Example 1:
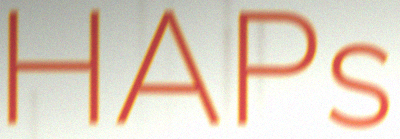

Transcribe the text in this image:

HAPs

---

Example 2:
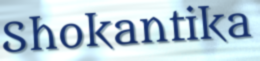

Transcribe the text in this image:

Shokantika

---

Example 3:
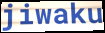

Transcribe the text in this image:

jiwaku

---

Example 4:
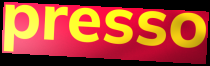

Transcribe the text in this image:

presso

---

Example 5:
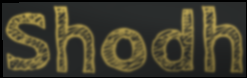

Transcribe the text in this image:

Shodh